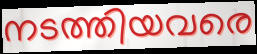
നടത്തിയവരെ